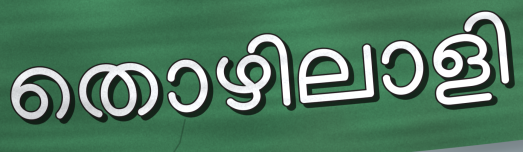
തൊഴിലാളി